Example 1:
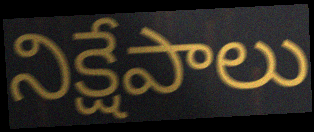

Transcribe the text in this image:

నిక్షేపాలు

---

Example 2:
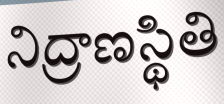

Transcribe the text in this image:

నిద్రాణస్థితి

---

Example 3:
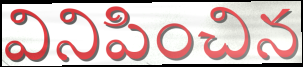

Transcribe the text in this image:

వినిపించిన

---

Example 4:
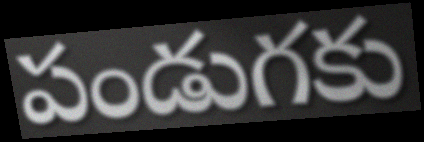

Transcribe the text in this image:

పండుగకు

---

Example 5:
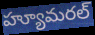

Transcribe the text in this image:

హ్యూమరల్